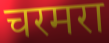
चरमरा